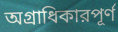
অগ্রাধিকারপূর্ণ